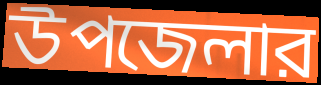
উপজেলার